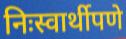
निःस्वार्थीपणे